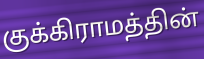
குக்கிராமத்தின்